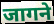
जागने